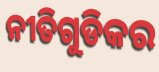
ନୀତିଗୁଡିକର